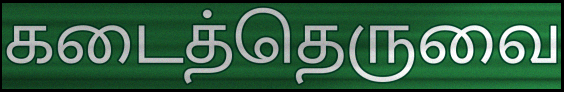
கடைத்தெருவை